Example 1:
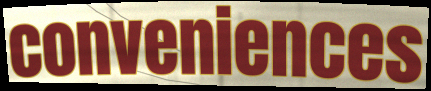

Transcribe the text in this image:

conveniences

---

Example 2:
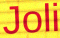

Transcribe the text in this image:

Joli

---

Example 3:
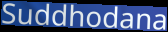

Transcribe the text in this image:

Suddhodana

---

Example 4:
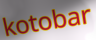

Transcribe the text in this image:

kotobar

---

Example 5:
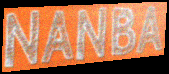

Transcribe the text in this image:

NANBA